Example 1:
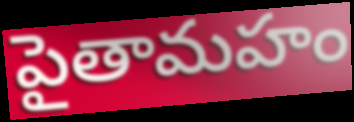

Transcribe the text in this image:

పైతామహం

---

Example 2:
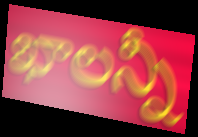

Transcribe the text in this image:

ఖాలన్నీ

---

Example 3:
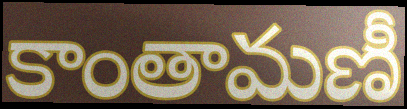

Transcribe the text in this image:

కాంతామణీ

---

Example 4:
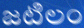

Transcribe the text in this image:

జటిలం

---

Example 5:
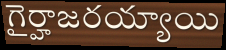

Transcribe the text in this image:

గైర్హాజరయ్యాయి